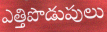
ఎత్తిపొడుపులు